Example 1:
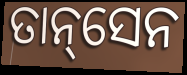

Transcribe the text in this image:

ତାନ୍‌ସେନ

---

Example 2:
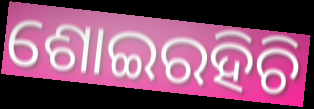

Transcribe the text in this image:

ଶୋଇରହିଚି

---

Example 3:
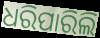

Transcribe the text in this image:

ଧରିପାରିଲି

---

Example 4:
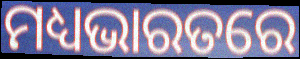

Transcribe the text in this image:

ମଧ୍ୟଭାରତରେ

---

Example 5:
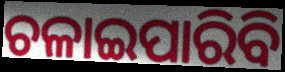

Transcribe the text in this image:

ଚଳାଇପାରିବି